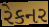
રેકનર